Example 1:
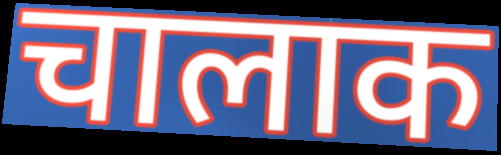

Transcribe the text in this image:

चालाक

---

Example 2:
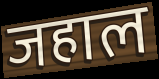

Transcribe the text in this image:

जहाल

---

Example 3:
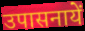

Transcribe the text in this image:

उपासनायें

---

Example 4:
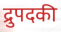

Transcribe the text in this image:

द्रुपदकी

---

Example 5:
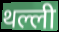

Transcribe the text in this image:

थल्ली